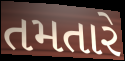
તમતારે